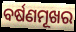
ବର୍ଷଣମୂଖର